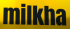
milkha